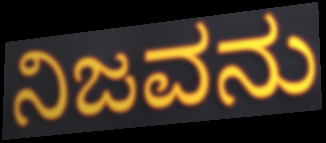
ನಿಜವನು